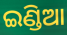
ଇଣ୍ଡିଆ